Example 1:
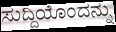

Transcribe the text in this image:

ಸುದ್ದಿಯೊಂದನ್ನು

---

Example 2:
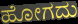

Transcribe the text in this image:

ಹೋಗದು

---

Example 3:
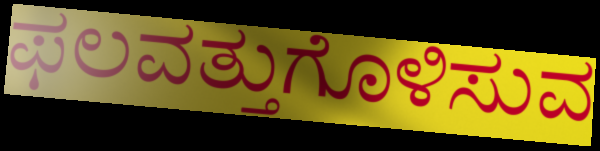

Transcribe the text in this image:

ಫಲವತ್ತುಗೊಳಿಸುವ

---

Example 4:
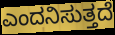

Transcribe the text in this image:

ಎಂದನಿಸುತ್ತದೆ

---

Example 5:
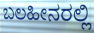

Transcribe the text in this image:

ಬಲಹೀನರಲ್ಲಿ